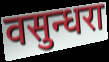
वसुन्धरा